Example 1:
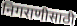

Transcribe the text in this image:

निगराणीसाठी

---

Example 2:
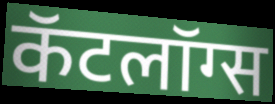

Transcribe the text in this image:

कॅटलॉग्स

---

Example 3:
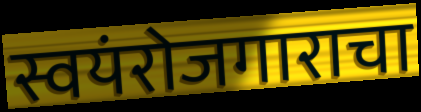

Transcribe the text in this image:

स्वयंरोजगाराचा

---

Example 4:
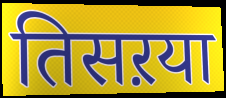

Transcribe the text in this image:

तिसऱया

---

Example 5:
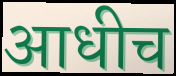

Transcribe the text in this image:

आधीच